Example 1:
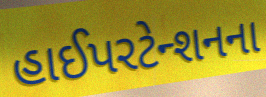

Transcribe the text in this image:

હાઈપરટેન્શનના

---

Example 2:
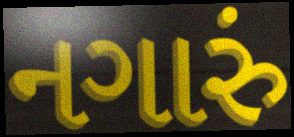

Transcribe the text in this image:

નગારું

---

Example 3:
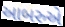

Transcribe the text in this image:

આબરુએ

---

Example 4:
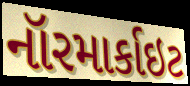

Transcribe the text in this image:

નૉરમાર્કાઇટ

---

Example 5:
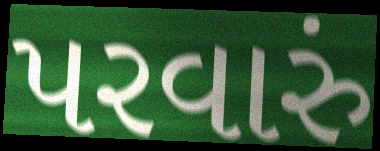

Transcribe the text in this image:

પરવારું